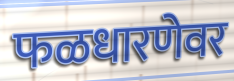
फळधारणेवर